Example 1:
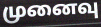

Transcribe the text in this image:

முனைவு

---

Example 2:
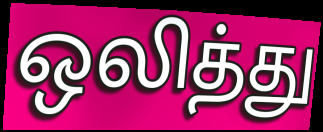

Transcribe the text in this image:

ஒலித்து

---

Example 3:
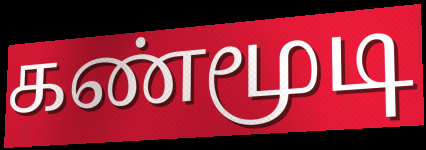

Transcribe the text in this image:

கண்மூடி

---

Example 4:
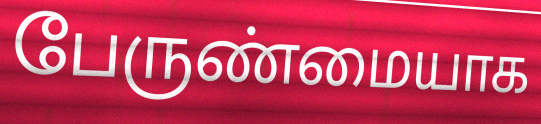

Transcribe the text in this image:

பேருண்மையாக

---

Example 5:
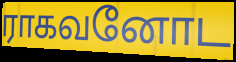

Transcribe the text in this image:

ராகவனோட